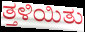
ತ್ತಳಿಯಿತು